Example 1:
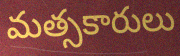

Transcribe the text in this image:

మత్సకారులు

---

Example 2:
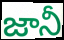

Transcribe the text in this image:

జానీ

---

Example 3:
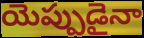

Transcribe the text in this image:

యెప్పుడైనా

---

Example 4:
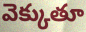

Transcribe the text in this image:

వెక్కుతూ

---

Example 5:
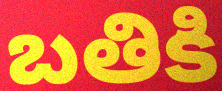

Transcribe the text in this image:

బతికి